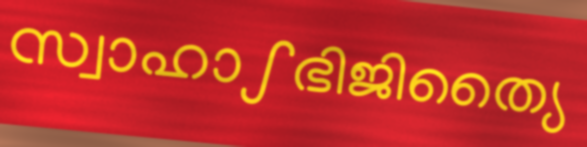
സ്വാഹാഽഭിജിത്യൈ